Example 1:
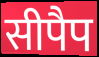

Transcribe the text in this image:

सीपैप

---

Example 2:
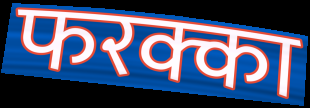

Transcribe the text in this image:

फरक्का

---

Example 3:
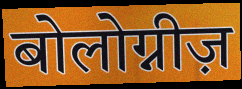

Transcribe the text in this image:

बोलोग्नीज़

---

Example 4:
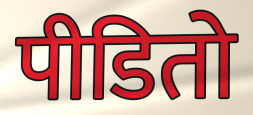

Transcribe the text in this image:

पीडितो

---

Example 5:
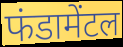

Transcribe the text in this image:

फंडामेंटल